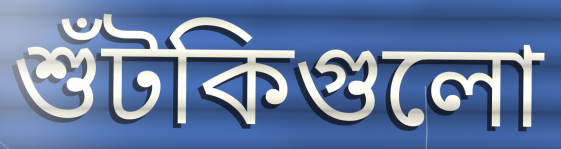
শুঁটকিগুলো